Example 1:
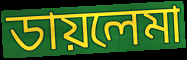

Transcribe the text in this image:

ডায়লেমা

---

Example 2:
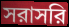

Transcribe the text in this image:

সরাসরি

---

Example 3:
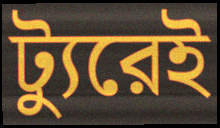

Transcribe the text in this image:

ট্যুরেই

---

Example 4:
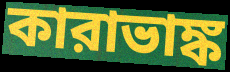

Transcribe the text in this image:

কারাভাঙ্ক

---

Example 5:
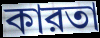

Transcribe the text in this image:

কারতা